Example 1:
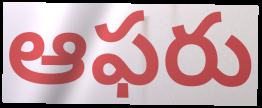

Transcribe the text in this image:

ఆఫరు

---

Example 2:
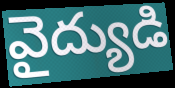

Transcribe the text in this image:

వైద్యుడి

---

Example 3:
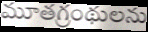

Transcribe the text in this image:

మూతగ్రంథులను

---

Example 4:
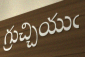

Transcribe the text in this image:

గ్రుచ్చియుఁ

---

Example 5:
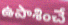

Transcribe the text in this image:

ఉపాశించే